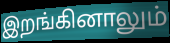
இறங்கினாலும்